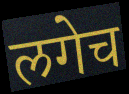
लगेच